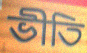
ভীতি